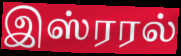
இஸ்ரரல்